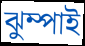
ঝুম্পাই